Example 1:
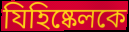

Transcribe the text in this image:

যিহিষ্কেলকে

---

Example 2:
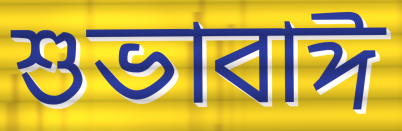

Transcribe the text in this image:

শুভাবাঈ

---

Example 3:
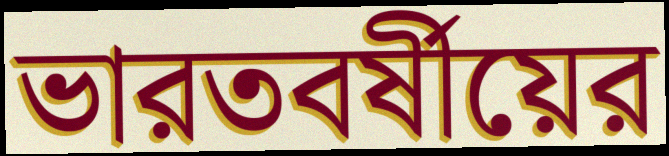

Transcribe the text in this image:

ভারতবর্ষীয়ের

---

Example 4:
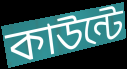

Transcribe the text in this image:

কাউন্টে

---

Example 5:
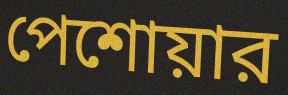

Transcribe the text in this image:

পেশোয়ার